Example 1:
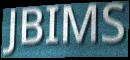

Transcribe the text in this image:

JBIMS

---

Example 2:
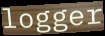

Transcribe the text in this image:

logger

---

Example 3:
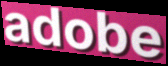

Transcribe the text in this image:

adobe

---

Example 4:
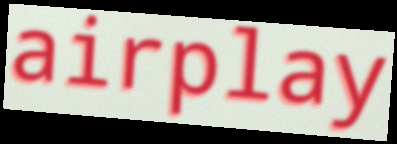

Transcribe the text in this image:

airplay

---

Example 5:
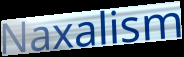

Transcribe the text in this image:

Naxalism